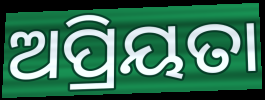
ଅପ୍ରିୟତା